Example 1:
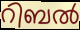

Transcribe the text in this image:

റിബൽ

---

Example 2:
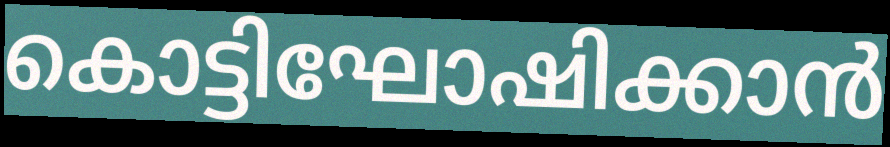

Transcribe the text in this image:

കൊട്ടിഘോഷിക്കാൻ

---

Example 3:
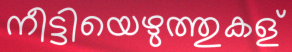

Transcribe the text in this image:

നീട്ടിയെഴുത്തുകള്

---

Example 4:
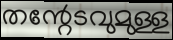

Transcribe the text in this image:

തന്റേടവുമുള്ള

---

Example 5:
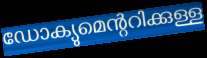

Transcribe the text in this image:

ഡോക്യുമെന്ററിക്കുള്ള